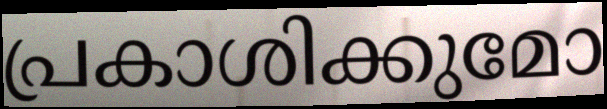
പ്രകാശിക്കുമോ